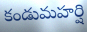
కండుమహర్షి